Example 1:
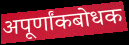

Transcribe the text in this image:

अपूर्णांकबोधक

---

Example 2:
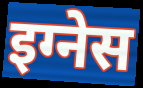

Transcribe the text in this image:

इग्नेस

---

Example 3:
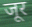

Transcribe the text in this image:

जूर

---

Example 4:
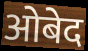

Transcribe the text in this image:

ओबेद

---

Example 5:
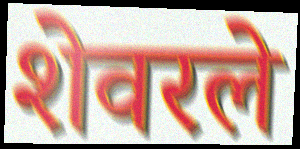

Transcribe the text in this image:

शेवरले